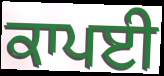
ਕਾਪਈ